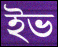
ইভ